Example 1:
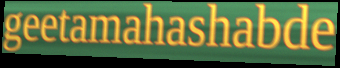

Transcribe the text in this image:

geetamahashabde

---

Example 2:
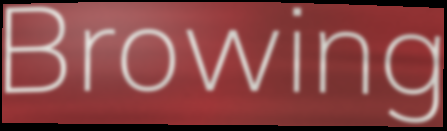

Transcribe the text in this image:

Browing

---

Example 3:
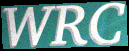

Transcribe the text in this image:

WRC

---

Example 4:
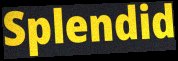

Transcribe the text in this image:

Splendid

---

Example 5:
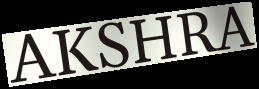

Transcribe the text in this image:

AKSHRA